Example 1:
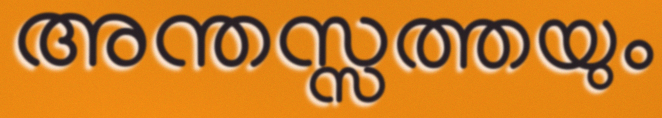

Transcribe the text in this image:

അന്തസ്സത്തയും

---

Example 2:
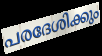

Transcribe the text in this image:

പരദേശിക്കും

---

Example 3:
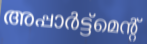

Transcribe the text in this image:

അപ്പാർട്ട്മെന്റ്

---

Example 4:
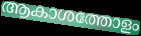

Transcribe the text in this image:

ആകാശത്തോളം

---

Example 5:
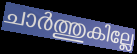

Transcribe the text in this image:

ചാർത്തുകില്ലേ